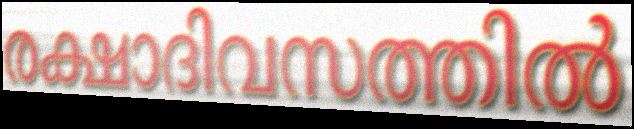
രക്ഷാദിവസത്തിൽ